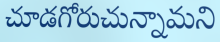
చూడగోరుచున్నామని